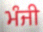
ਮੰਜੀ